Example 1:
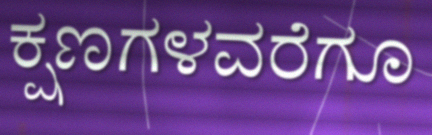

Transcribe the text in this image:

ಕ್ಷಣಗಳವರೆಗೂ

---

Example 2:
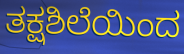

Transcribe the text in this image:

ತಕ್ಷಶಿಲೆಯಿಂದ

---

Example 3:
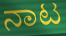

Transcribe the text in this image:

ನಾಟ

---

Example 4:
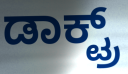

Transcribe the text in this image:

ಡಾಕ್ಟ್ರ್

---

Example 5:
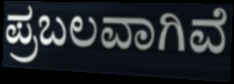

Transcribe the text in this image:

ಪ್ರಬಲವಾಗಿವೆ